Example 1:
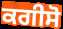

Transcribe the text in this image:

ਕਗੀਸੋ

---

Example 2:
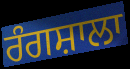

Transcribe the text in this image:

ਰੰਗਸ਼ਾਲਾ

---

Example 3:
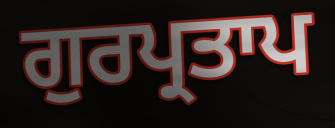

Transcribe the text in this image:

ਗੁਰਪ੍ਰਤਾਪ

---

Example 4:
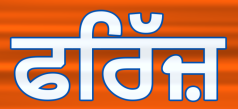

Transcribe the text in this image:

ਫਰਿੱਜ਼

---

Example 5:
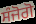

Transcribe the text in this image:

ਸੰਜੋਗੋ